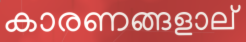
കാരണങ്ങളാല്